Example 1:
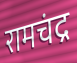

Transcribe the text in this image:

रामचंद्र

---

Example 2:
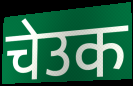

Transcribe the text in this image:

चेउक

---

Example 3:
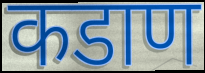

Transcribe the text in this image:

कडाण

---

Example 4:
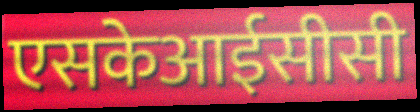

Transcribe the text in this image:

एसकेआईसीसी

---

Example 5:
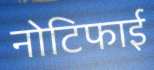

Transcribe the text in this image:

नोटिफाई